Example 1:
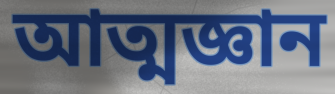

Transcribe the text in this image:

আত্মজ্ঞান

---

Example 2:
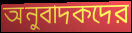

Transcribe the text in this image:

অনুবাদকদের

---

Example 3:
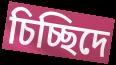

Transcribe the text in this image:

চিচ্ছিদে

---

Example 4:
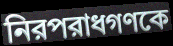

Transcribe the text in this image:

নিরপরাধগণকে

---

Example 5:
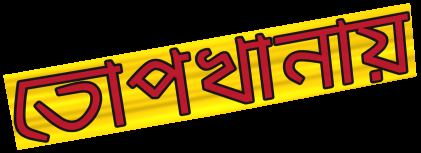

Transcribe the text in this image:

তোপখানায়